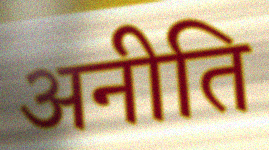
अनीति